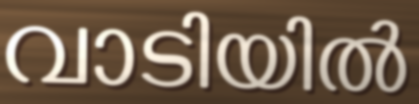
വാടിയിൽ